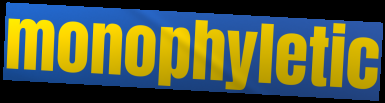
monophyletic